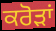
ਕਰੋੜਾਂ